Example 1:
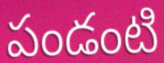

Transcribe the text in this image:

పండంటి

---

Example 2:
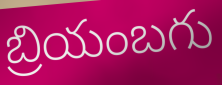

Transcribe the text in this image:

బ్రియంబగు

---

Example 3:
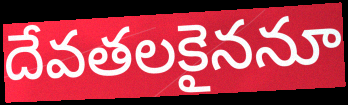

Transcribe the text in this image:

దేవతలకైననూ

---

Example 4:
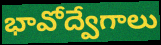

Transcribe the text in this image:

భావోద్వేగాలు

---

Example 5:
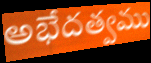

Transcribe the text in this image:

అభేదత్వము